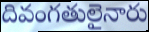
దివంగతులైనారు